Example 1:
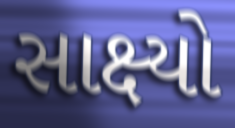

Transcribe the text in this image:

સાક્ષ્યો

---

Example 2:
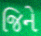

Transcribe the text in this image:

જિને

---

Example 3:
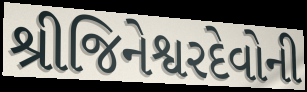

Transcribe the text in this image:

શ્રીજિનેશ્વરદેવોની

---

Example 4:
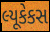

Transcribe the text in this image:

લ્યૂકેકસ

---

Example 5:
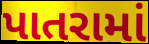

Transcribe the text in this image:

પાતરામાં